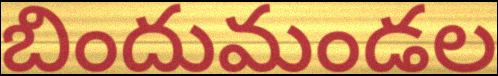
బిందుమండల